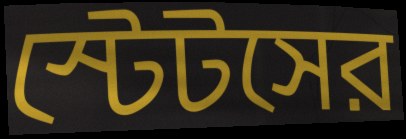
স্টেটসের